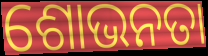
ଶୋଭନତା